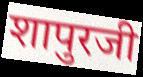
शापुरजी